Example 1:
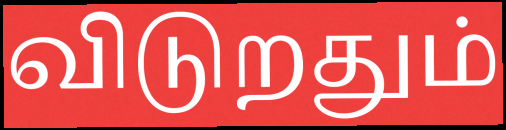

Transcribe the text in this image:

விடுறதும்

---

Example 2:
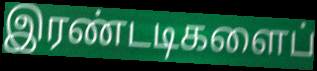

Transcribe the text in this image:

இரண்டடிகளைப்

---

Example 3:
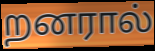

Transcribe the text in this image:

றனரால்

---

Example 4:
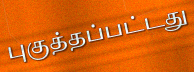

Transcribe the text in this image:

புகுத்தப்பட்டது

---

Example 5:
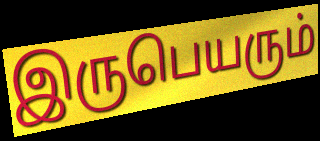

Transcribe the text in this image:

இருபெயரும்